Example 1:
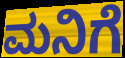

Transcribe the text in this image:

ಮನಿಗೆ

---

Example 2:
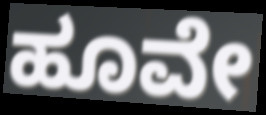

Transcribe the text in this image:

ಹೂವೇ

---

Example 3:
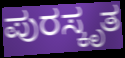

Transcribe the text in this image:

ಪುರಸ್ಕೃತ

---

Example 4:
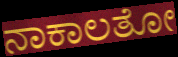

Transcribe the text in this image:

ನಾಕಾಲತೋ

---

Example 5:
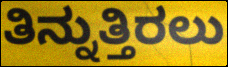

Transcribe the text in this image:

ತಿನ್ನುತ್ತಿರಲು